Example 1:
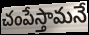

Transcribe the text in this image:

చంపేస్తామనే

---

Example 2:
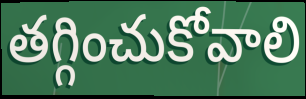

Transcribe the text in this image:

తగ్గించుకోవాలి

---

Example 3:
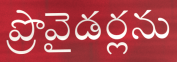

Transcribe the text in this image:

ప్రొవైడర్లను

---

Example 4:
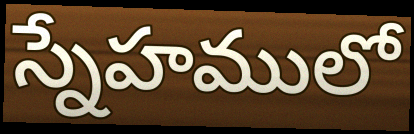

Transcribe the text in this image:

స్నేహములో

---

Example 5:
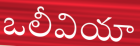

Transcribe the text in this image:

ఒలీవియా